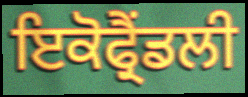
ਇਕੋਫ੍ਰੈਂਡਲੀ